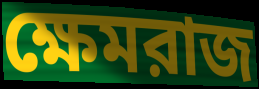
ক্ষেমরাজ